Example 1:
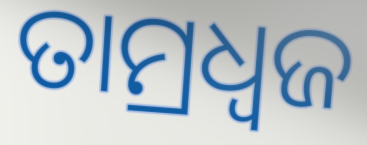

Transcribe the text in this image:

ତାମ୍ରଧ୍ୱଜ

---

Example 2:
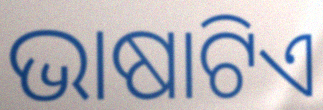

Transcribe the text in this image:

ଭାଷାଟିଏ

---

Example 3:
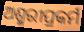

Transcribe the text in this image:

ଅଶ୍ମରୀପ୍ରକର୍ମ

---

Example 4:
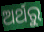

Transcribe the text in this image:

ଅର୍ଥରୁ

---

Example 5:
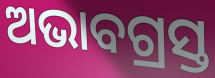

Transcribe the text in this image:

ଅଭାବଗ୍ରସ୍ତ